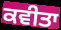
ਕਵੀਤਾ